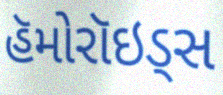
હૅમોરૉઇડ્સ